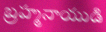
బ్రహ్మనాయుడి